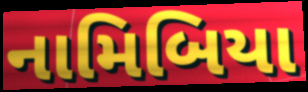
નામિબિયા